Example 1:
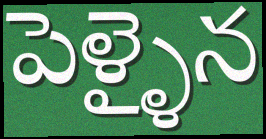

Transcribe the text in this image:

పెళ్ళైన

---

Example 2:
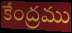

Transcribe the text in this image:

కేంద్రము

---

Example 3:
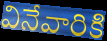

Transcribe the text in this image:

వినేవారికి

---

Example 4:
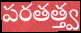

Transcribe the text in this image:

పరతత్త్వ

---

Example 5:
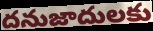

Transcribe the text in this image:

దనుజాదులకు